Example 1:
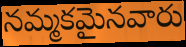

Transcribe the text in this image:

నమ్మకమైనవారు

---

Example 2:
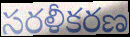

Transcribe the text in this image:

సరళీకరణ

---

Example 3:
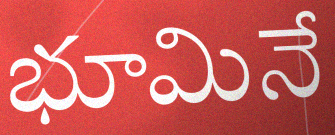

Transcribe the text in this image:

భూమినే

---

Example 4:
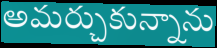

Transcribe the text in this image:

అమర్చుకున్నాను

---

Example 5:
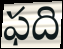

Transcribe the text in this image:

ఫది